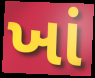
ખાં